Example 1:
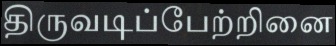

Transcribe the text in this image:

திருவடிப்பேற்றினை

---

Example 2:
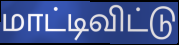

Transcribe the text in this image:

மாட்டிவிட்டு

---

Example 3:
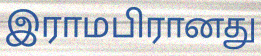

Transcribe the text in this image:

இராமபிரானது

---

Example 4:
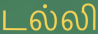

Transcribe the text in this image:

டல்லி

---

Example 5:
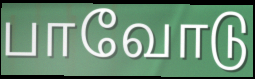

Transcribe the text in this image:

பாவோடு